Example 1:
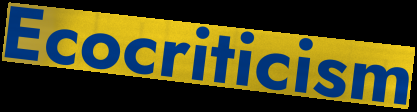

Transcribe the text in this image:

Ecocriticism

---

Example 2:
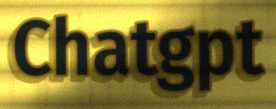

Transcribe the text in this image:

Chatgpt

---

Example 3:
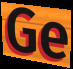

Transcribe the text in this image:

Ge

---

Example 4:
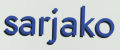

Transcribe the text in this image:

sarjako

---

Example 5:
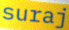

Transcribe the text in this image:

suraj